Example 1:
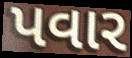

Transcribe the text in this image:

પવાર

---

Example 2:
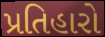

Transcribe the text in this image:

પ્રતિહારો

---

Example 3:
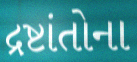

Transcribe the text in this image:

દ્રષ્ટાંતોના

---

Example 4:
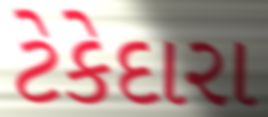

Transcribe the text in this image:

ટેકેદારા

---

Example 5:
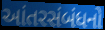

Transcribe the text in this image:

આંતરસંબંધનો